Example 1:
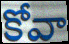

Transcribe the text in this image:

కోవా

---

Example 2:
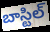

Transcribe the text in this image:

బాస్టిల్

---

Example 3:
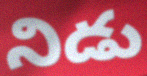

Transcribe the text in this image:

నిడు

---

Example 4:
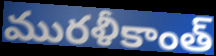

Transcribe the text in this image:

మురళీకాంత్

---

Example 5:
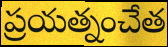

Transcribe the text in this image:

ప్రయత్నంచేత